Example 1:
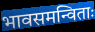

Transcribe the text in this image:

भावसमन्विताः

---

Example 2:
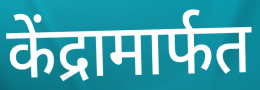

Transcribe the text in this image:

केंद्रामार्फत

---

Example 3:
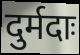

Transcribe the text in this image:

दुर्मदाः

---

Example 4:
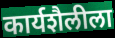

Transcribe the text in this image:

कार्यशैलीला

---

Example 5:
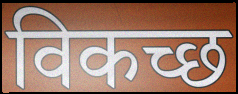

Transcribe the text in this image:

विकच्छ